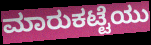
ಮಾರುಕಟ್ಟೆಯು